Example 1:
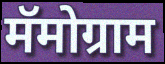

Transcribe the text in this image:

मॅमोग्राम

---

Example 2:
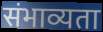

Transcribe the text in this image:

संभाव्यता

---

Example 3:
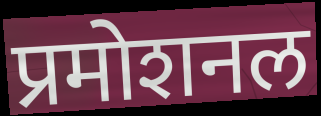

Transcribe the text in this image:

प्रमोशनल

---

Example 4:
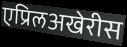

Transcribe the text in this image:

एप्रिलअखेरीस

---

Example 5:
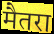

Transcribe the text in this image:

मैतरा